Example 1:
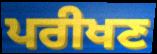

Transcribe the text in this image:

ਪਰੀਖਣ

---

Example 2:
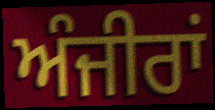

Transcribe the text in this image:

ਅੰਜੀਰਾਂ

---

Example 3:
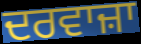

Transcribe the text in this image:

ਦਰਵਾਜ਼ਾ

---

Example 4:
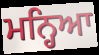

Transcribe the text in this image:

ਮਨ੍ਹਿਆ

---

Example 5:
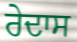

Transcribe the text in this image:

ਰੇਦਾਸ